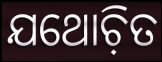
ଯଥୋଚ଼ିତ